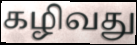
கழிவது